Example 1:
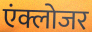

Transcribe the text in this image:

एंक्लोजर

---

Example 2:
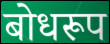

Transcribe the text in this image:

बोधरूप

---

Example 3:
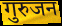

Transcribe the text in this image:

गुरुजन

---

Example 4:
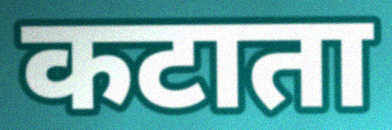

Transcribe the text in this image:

कटाता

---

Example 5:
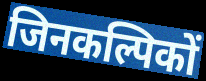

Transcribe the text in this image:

जिनकल्पिकों